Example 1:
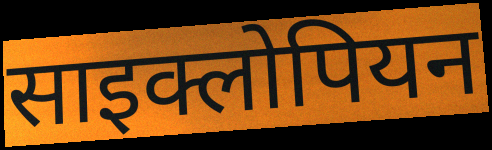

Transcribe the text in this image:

साइक्लोपियन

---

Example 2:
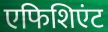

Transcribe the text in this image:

एफिशिएंट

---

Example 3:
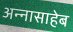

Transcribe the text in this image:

अन्नासाहेब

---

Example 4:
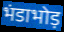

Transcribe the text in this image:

भंडाभोड़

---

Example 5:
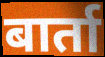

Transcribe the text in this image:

बार्ता